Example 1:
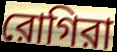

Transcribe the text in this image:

রোগিরা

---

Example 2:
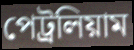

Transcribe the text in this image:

পেট্রলিয়াম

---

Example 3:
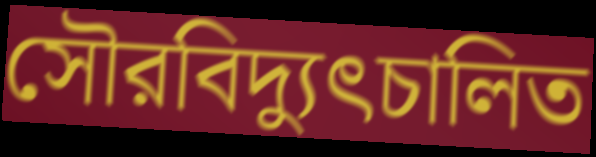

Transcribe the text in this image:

সৌরবিদ্যুৎচালিত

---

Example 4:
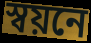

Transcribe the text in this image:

স্বয়নে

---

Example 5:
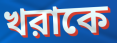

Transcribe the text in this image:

খরাকে